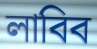
লাবিব